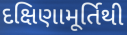
દક્ષિણામૂર્તિથી